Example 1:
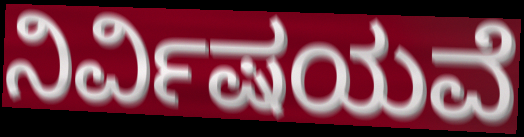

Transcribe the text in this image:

ನಿರ್ವಿಷಯವೆ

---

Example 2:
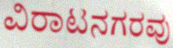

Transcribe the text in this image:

ವಿರಾಟನಗರವು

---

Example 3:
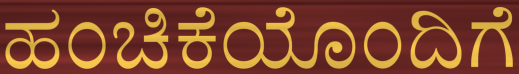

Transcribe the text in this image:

ಹಂಚಿಕೆಯೊಂದಿಗೆ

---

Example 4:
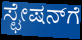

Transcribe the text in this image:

ಸ್ಟೇಷನ್‌ಗೆ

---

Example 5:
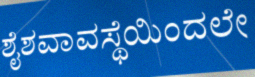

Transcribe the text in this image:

ಶೈಶವಾವಸ್ಥೆಯಿಂದಲೇ